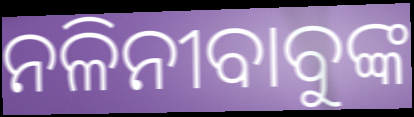
ନଳିନୀବାବୁଙ୍କ